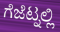
ಗೆಜೆಟ್ನಲ್ಲಿ